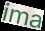
ima